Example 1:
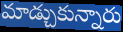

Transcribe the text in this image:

మాడ్చుకున్నారు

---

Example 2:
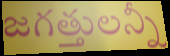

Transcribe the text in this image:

జగత్తులన్నీ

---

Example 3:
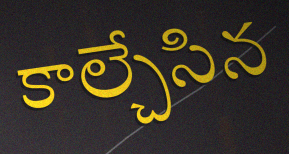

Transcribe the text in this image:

కాల్చేసిన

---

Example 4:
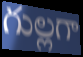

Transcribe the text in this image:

గుల్లగా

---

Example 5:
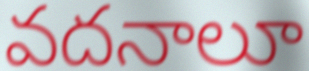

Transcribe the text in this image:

వదనాలూ